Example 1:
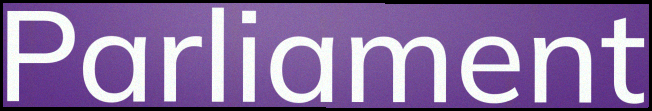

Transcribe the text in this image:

Parliament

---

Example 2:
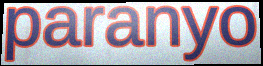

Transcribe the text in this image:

paranyo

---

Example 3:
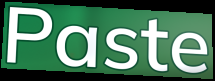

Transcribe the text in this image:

Paste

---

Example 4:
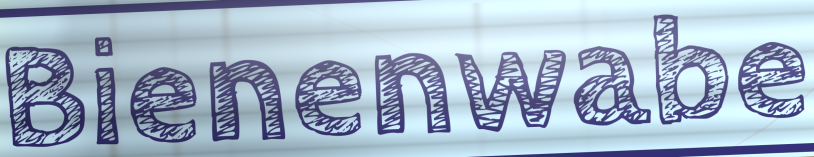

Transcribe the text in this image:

Bienenwabe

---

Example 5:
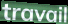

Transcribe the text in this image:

travail